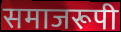
समाजरूपी